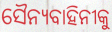
ସୈନ୍ୟବାହିନୀକୁ